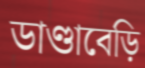
ডাণ্ডাবেড়ি